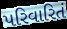
પરિવારિતં